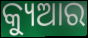
କ୍ୟୁଆର